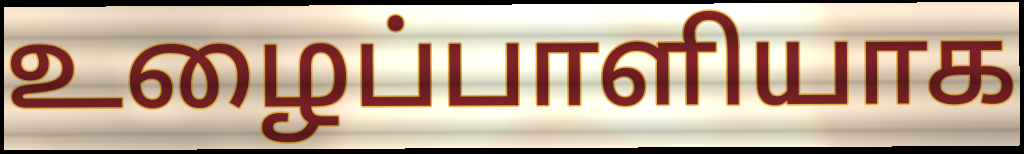
உழைப்பாளியாக